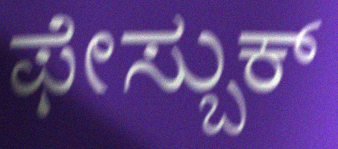
ಫೇಸ್ಬುಕ್